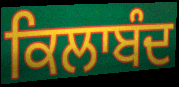
ਕਿਲਾਬੰਦ